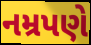
નમ્રપણે